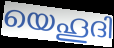
യെഹൂദി